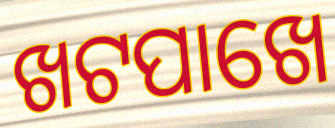
ଖଟପାଖେ